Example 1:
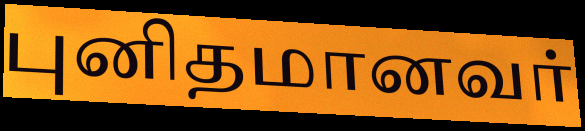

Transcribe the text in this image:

புனிதமானவர்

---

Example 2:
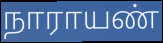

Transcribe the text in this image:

நாராயண்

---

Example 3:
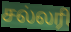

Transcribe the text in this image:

சல்லரி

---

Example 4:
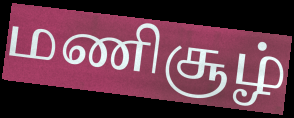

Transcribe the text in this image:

மணிசூழ்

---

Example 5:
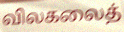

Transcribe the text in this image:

விலகலைத்